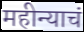
महीन्याचं